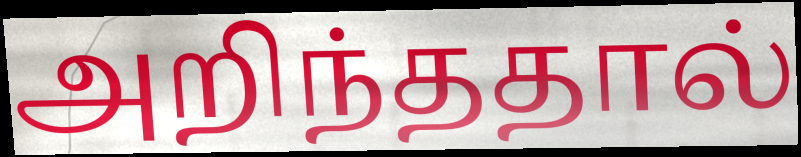
அறிந்ததால்